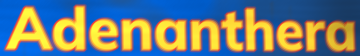
Adenanthera